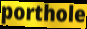
porthole